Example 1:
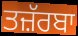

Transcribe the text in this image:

ਤਜ਼ੱਰਬਾ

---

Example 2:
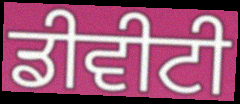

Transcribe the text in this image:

ਡੀਵੀਟੀ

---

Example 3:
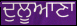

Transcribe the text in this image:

ਦੁਲੂਆਣਾ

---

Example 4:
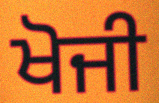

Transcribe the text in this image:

ਖੋਜੀ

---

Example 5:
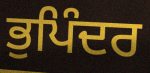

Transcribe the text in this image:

ਭੁਪਿੰਦਰ